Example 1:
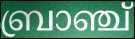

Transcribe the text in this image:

ബ്രാഞ്ച്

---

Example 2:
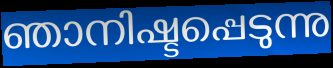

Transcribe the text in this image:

ഞാനിഷ്ടപ്പെടുന്നു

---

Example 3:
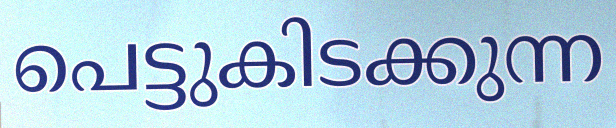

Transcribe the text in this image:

പെട്ടുകിടക്കുന്ന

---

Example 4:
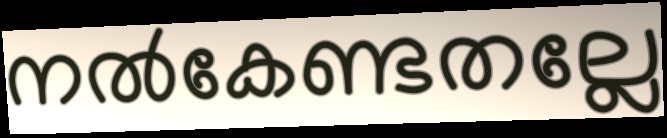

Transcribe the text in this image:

നൽകേണ്ടതല്ലേ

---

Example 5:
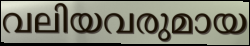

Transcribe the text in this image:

വലിയവരുമായ